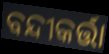
ବନ୍ଦୀକର୍ତ୍ତା